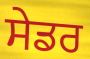
ਸੇਡਰ